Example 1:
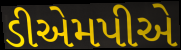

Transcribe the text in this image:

ડીએમપીએ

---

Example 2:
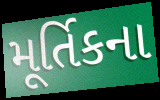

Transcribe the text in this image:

મૂર્તિકના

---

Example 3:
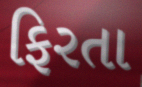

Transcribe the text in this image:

ફિરતા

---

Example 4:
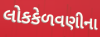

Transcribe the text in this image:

લોકકેળવણીના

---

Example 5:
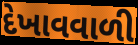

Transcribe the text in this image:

દેખાવવાળી